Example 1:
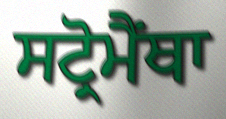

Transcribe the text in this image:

ਸਟ੍ਰੋਮੈਂਥਾ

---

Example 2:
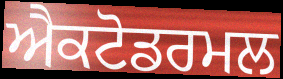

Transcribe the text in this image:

ਐਕਟੋਡਰਮਲ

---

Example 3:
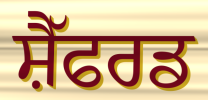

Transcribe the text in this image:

ਸ਼ੈੱਫਰਡ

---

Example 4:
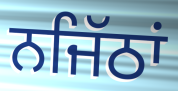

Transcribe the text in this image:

ਨਜਿੱਠਾਂ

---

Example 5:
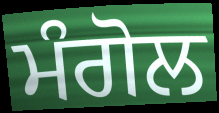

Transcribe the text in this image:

ਮੰਗੋਲ